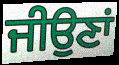
ਜੀਉਣਾਂ